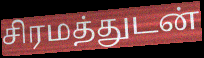
சிரமத்துடன்